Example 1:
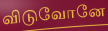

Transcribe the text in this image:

விடுவோனே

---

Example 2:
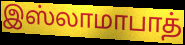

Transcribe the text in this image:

இஸ்லாமாபாத்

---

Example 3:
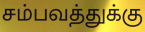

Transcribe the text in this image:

சம்பவத்துக்கு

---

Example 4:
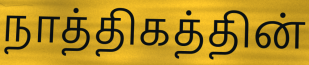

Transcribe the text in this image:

நாத்திகத்தின்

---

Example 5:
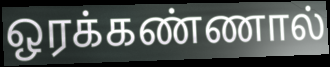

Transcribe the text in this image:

ஒரக்கண்ணால்